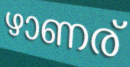
ഴാണര്